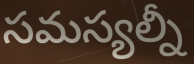
సమస్యల్నీ